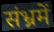
संभ्रमें